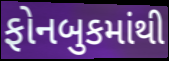
ફોનબુકમાંથી